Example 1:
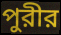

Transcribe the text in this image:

পুরীর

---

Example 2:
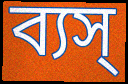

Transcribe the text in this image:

ব্যস্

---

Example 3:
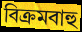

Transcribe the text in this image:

বিক্রমবাহু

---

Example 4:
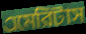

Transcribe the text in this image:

এমেরিটাস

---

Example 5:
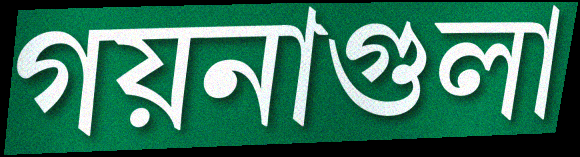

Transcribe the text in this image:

গয়নাগুলা